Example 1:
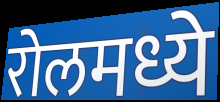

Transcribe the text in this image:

रोलमध्ये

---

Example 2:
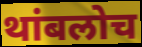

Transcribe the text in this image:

थांबलोच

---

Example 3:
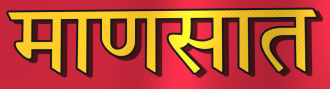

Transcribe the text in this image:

माणसात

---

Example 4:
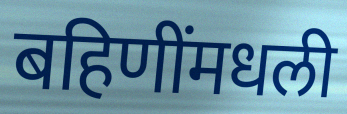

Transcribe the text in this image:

बहिणींमधली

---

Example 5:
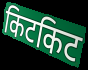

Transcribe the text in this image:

किटकिट